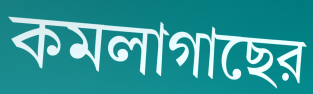
কমলাগাছের